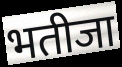
भतीजा